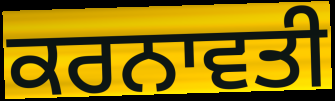
ਕਰਨਾਵਤੀ